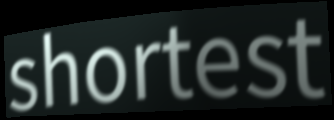
shortest